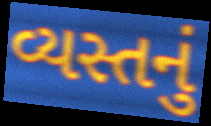
વ્યસ્તનું